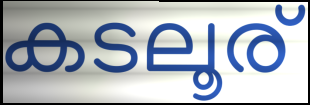
കടലൂര്